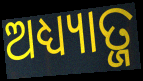
ଅଧ୍ୟ୍ୟାତ୍ଜ